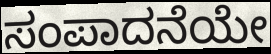
ಸಂಪಾದನೆಯೇ